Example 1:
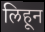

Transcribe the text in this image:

लिहून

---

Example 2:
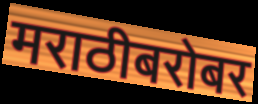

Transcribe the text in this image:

मराठीबरोबर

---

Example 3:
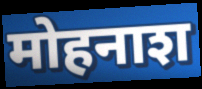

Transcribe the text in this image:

मोहनाश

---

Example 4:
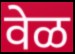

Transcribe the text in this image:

वेळ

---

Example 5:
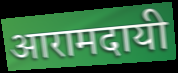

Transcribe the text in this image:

आरामदायी